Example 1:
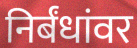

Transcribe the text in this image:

निर्बंधांवर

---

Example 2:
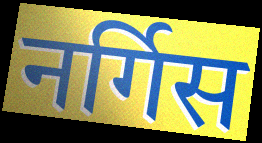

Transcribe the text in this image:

नर्गिस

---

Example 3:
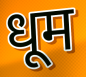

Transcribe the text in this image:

धूम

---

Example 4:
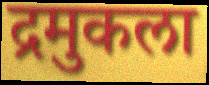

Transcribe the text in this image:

द्रमुकला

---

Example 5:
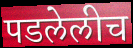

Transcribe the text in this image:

पडलेलीच